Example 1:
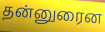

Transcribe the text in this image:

தன்னுரைன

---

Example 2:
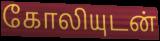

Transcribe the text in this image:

கோலியுடன்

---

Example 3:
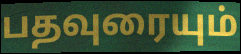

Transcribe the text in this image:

பதவுரையும்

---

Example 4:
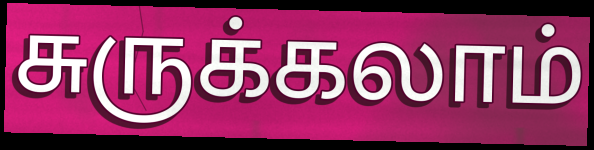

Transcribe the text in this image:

சுருக்கலாம்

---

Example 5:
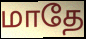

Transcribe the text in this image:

மாதே